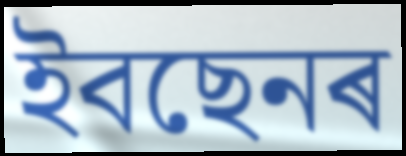
ইবছেনৰ